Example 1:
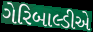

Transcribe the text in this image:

ગેરિબાલ્ડીએ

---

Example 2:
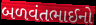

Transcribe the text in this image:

બળવંતભાઈનો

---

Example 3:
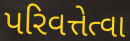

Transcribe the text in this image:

પરિવત્તેત્વા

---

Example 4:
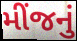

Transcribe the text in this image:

મીંજનું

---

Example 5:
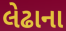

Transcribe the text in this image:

લેઢાના